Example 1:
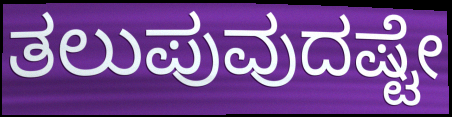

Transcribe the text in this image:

ತಲುಪುವುದಷ್ಟೇ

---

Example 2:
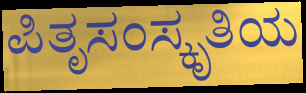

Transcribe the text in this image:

ಪಿತೃಸಂಸ್ಕೃತಿಯ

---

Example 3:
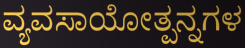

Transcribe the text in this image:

ವ್ಯವಸಾಯೋತ್ಪನ್ನಗಳ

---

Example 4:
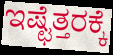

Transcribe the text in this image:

ಇಷ್ಟೆತ್ತರಕ್ಕೆ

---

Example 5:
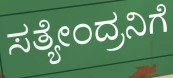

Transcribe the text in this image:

ಸತ್ಯೇಂದ್ರನಿಗೆ